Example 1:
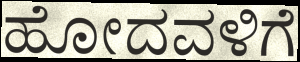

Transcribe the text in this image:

ಹೋದವಳಿಗೆ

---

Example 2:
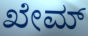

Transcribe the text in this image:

ಖೇಮ್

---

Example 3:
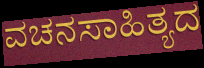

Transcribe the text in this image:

ವಚನಸಾಹಿತ್ಯದ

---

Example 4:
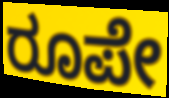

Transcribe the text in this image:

ರೂಪೇ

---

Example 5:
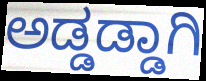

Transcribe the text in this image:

ಅಡ್ಡಡ್ಡಾಗಿ